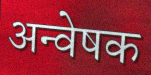
अन्वेषक